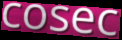
cosec